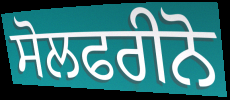
ਸੋਲਫਰੀਨੋ